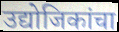
उद्योजिकांचा